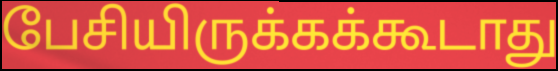
பேசியிருக்கக்கூடாது